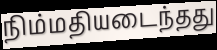
நிம்மதியடைந்தது